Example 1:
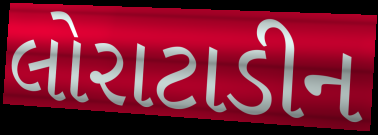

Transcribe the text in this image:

લોરાટાડીન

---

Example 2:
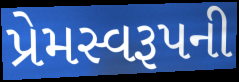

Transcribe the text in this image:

પ્રેમસ્વરૂપની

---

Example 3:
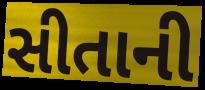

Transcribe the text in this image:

સીતાની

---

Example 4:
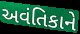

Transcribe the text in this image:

અવંતિકાને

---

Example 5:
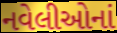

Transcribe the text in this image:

નવેલીઓનાં